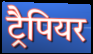
ट्रैपियर